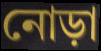
নোড়া